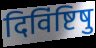
दिवि॑ष्टिषु